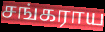
சங்கராய